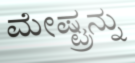
ಮೇಷ್ಟ್ರನ್ನು